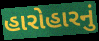
હારોહારનું